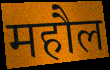
महौल